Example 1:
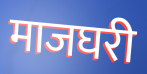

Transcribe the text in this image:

माजघरी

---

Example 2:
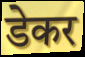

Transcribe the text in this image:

डेकर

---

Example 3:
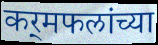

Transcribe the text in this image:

कर्मफलांच्या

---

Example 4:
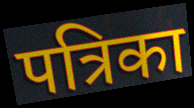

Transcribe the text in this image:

पत्रिका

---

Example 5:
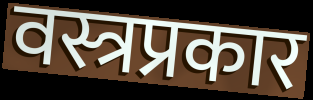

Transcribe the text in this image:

वस्त्रप्रकार